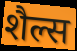
शैल्स